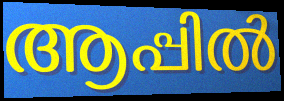
ആപ്പിൽ